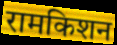
रामकिशन